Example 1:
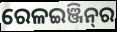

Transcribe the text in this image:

ରେଳଇଞ୍ଜିନ୍‌ର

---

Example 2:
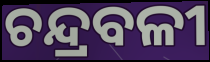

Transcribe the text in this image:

ଚନ୍ଦ୍ରବଳୀ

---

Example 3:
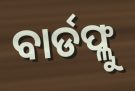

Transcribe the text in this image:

ବାର୍ଡଫ୍ଲୁ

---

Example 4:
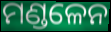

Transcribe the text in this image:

ମଣ୍ଡଳେନ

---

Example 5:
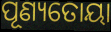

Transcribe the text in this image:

ପୂଣ୍ୟତୋୟା